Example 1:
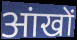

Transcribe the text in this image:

आंखों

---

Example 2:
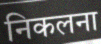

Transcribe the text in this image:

निकलना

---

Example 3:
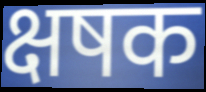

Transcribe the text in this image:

क्षषक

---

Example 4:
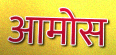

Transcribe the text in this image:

आमोस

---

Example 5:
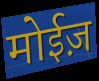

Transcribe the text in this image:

मोईज़